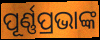
ପୂର୍ଣ୍ଣପ୍ରଭାଙ୍କ